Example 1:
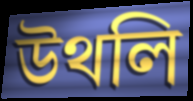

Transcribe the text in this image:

উথলি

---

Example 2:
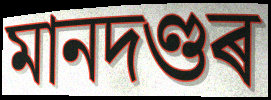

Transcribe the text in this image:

মানদণ্ডৰ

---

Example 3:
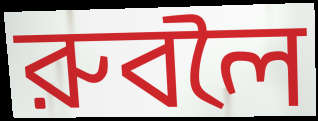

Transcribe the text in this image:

ৰুবলৈ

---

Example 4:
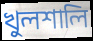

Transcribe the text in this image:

খুলশালি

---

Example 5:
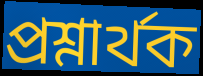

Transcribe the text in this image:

প্ৰশ্নাৰ্থক